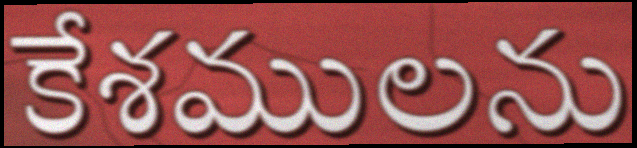
కేశములను